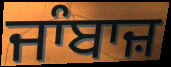
ਜਾੰਬਾਜ਼